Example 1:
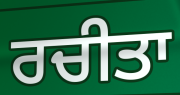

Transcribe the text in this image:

ਰਚੀਤਾ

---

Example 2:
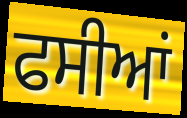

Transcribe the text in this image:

ਫਸੀਆਂ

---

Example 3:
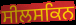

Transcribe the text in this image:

ਸੀਲਸਕਿਨ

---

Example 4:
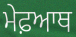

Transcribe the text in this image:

ਮੇਫ਼ਆਥ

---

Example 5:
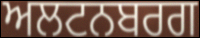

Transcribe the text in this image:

ਅਲਟਨਬਰਗ